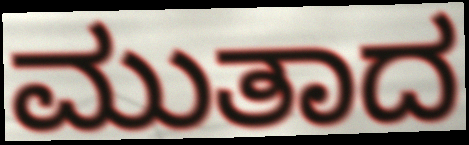
ಮುತಾದ